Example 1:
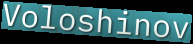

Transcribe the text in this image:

Voloshinov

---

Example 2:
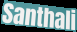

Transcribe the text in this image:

Santhali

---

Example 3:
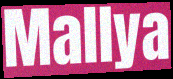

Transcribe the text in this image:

Mallya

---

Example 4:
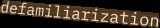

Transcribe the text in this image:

defamiliarization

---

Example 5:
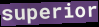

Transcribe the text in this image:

superior